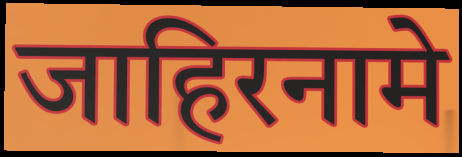
जाहिरनामे